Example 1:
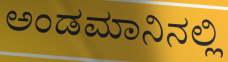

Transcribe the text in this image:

ಅಂಡಮಾನಿನಲ್ಲಿ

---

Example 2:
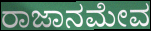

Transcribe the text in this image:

ರಾಜಾನಮೇವ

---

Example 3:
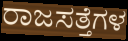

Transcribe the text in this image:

ರಾಜಸತ್ತೆಗಳ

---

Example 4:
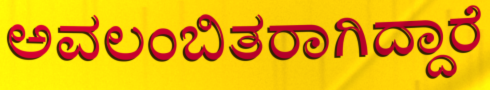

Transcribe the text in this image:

ಅವಲಂಬಿತರಾಗಿದ್ದಾರೆ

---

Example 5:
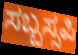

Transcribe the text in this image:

ಸಬ್ಬಸ್ಸಪಿ